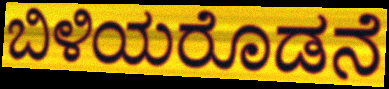
ಬಿಳಿಯರೊಡನೆ